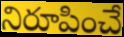
నిరూపించే